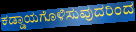
ಕಡ್ಡಾಯಗೊಳಿಸುವುದರಿಂದ